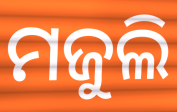
ମଜୁଲି